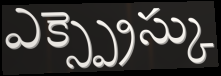
ఎక్స్ప్రెస్కు